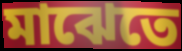
মাঝেতে